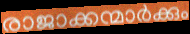
രാജാക്കന്മാർക്കും